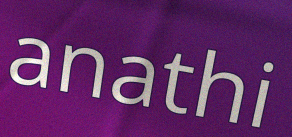
anathi